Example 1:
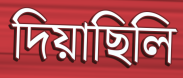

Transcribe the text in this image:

দিয়াছিলি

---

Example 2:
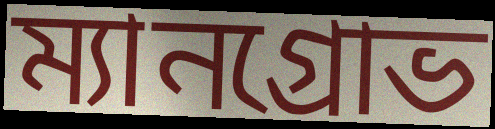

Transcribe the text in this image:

ম্যানগ্রোভ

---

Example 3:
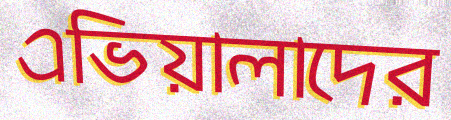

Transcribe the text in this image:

এভিয়ালাদের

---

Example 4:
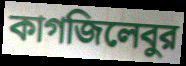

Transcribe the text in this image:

কাগজিলেবুর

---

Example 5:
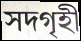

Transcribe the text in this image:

সদগৃহী